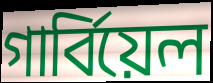
গার্বিয়েল